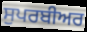
ਸੁਪਰਬੀਅਰ